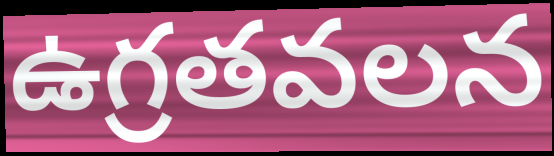
ఉగ్రతవలన